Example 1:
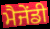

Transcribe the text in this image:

ਮੈਜੇਂਡੀ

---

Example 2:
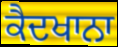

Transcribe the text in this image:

ਕੈਦਖਾਨਾ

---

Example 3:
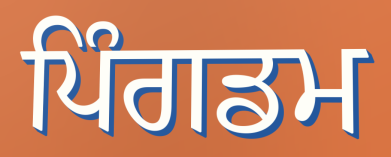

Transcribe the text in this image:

ਪਿੰਗਡਮ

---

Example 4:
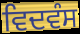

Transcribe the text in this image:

ਵਿਦਵੰਸ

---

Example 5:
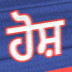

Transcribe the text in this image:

ਹੋਸ਼